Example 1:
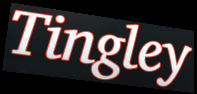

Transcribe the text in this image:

Tingley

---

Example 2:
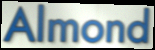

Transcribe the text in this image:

Almond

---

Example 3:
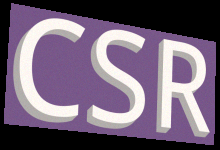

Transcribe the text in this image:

CSR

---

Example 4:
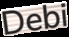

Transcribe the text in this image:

Debi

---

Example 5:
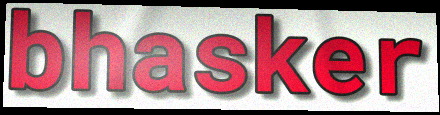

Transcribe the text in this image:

bhasker